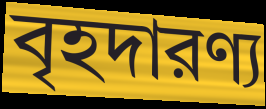
বৃহদারণ্য